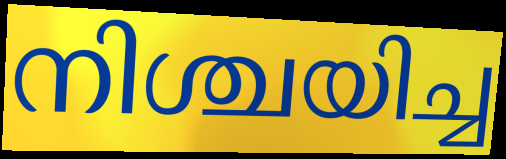
നിശ്ചയിച്ച